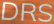
DRS